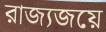
রাজ্যজয়ে